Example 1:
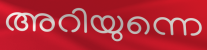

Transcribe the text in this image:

അറിയുന്നെ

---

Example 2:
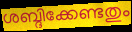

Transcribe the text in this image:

ശബ്ദിക്കേണ്ടതും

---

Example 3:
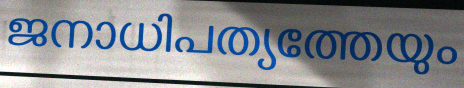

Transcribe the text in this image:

ജനാധിപത്യത്തേയും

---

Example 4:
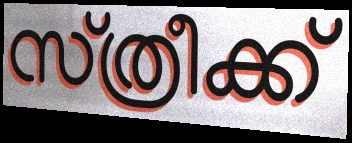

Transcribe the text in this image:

സ്‌ത്രീക്ക്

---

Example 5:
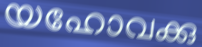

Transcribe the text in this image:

യഹോവക്കു